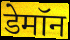
डेमॉन